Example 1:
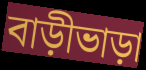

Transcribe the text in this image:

বাড়ীভাড়া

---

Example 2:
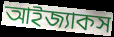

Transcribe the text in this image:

আইজ্যাকস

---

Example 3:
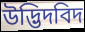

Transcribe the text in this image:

উদ্ভিদবিদ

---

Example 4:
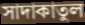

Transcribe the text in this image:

সাদাকাতুল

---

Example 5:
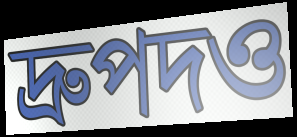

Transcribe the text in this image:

দ্রুপদও